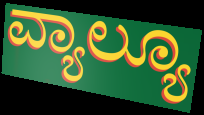
ವ್ಯಾಲ್ಯೂ